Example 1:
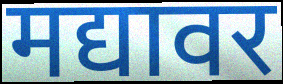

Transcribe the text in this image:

मद्यावर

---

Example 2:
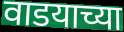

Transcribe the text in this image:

वाडयाच्या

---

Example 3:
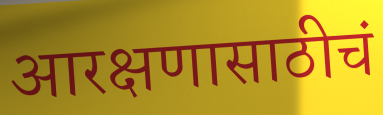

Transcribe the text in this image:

आरक्षणासाठीचं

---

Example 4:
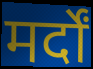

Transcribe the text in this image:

मर्दों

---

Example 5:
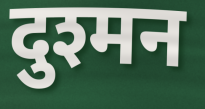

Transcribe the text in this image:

दुश्मन